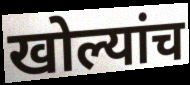
खोल्यांच